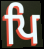
ਪਿ